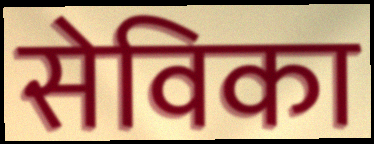
सेविका